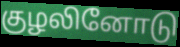
குழலினோடு